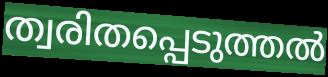
ത്വരിതപ്പെടുത്തൽ